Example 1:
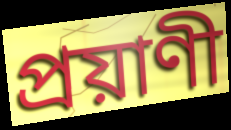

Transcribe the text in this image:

প্রয়াণী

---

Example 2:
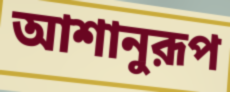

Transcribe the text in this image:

আশানুরূপ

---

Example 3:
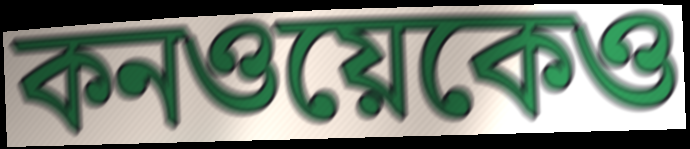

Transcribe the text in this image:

কনওয়েকেও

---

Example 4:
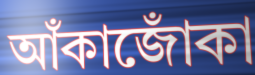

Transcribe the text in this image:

আঁকাজোঁকা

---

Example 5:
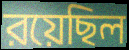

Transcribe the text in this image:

রয়েছিল